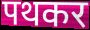
पथकर